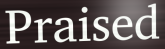
Praised